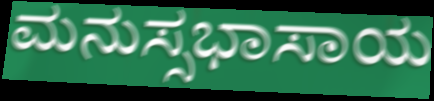
ಮನುಸ್ಸಭಾಸಾಯ